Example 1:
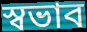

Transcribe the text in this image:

স্বভাব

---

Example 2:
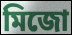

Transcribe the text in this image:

মিজো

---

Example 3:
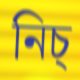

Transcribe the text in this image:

নিচ্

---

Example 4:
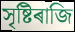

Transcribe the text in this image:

সৃষ্টিৰাজি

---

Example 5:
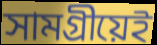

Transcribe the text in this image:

সামগ্ৰীয়েই